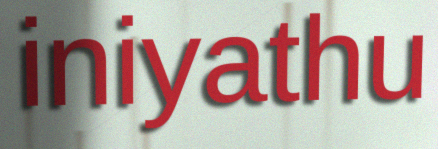
iniyathu